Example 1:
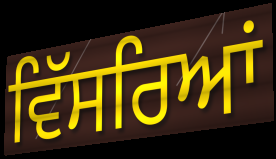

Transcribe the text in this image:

ਵਿੱਸਰਿਆਂ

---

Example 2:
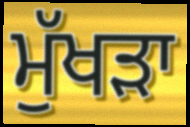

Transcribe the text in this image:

ਮੁੱਖੜਾ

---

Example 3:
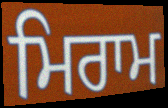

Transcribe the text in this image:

ਮਿਰਾਮ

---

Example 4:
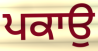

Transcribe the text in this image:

ਪਕਾਉ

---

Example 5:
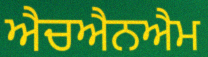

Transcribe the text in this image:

ਐਚਐਨਐਮ